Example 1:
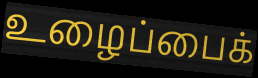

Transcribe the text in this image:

உழைப்பைக்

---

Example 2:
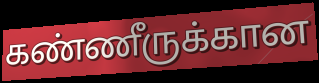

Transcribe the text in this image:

கண்ணீருக்கான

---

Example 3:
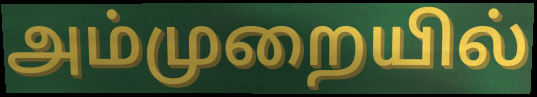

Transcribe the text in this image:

அம்முறையில்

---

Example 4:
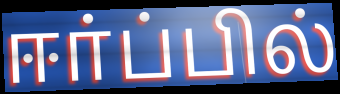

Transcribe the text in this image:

ஈர்ப்பில்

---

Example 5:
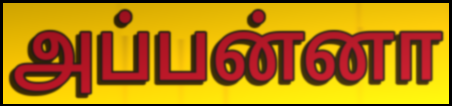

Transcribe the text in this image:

அப்பன்னா